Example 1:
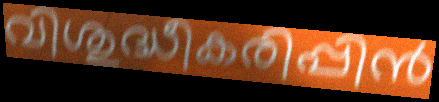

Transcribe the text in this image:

വിശുദ്ധീകരിപ്പിൻ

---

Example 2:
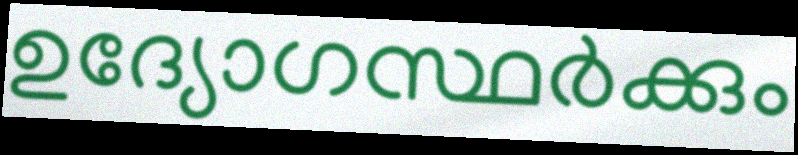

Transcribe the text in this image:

ഉദ്യോഗസ്ഥർക്കും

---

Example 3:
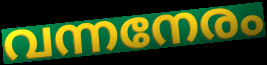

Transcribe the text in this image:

വന്നനേരം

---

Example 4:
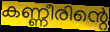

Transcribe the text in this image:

കണ്ണീരിന്റെ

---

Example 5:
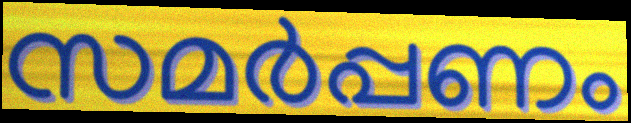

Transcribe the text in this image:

സമർപ്പണം